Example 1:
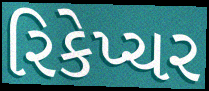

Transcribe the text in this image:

રિકેપ્ચર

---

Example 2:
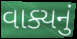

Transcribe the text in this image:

વાક્યનું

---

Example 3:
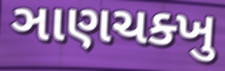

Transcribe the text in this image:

ઞાણચક્ખુ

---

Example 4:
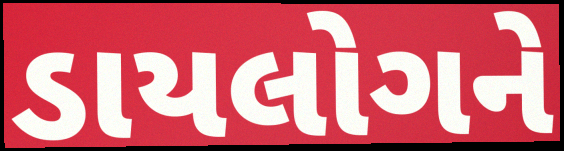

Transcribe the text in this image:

ડાયલોગને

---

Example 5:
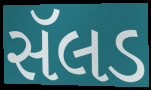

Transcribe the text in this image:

સૅલડ